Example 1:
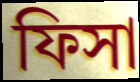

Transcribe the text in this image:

ফিসা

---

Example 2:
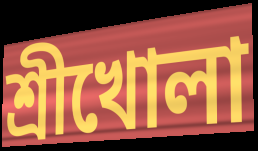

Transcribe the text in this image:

শ্রীখোলা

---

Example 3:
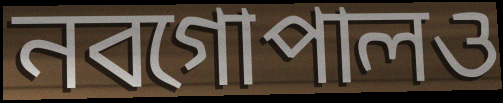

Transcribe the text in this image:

নবগোপালও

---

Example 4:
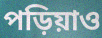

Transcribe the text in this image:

পড়িয়াও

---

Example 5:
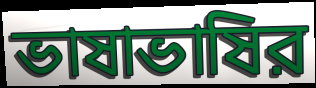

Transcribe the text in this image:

ভাষাভাষির